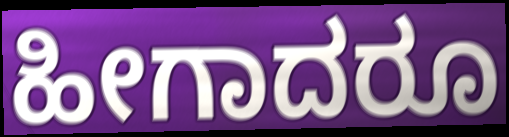
ಹೀಗಾದರೂ